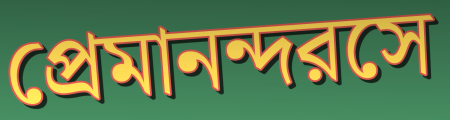
প্রেমানন্দরসে